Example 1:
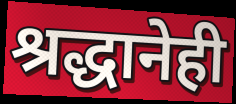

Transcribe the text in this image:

श्रद्धानेही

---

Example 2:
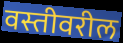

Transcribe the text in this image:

वस्तीवरील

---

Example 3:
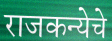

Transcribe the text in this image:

राजकन्येचे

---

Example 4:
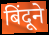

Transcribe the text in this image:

बिंदूने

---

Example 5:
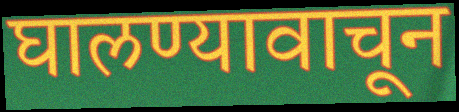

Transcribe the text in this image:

घालण्यावाचून